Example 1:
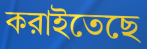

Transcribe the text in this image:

করাইতেছে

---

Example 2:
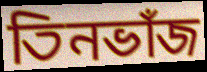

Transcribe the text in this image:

তিনভাঁজ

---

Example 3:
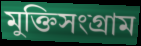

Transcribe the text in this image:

মুক্তিসংগ্রাম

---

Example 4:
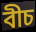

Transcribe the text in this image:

বীচ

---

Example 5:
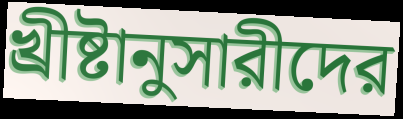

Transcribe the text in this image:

খ্রীষ্টানুসারীদের